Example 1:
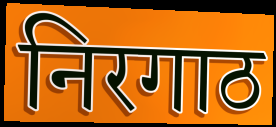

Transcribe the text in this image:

निरगाठ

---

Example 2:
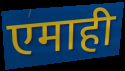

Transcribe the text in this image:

एमाही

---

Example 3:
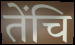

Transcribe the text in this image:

तेंचि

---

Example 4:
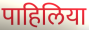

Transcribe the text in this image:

पाहिलिया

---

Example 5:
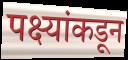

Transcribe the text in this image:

पक्ष्यांकडून